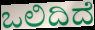
ಒಲಿದಿದೆ